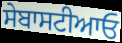
ਸੇਬਾਸਟੀਆਓ